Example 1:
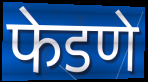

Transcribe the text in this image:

फेडणे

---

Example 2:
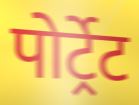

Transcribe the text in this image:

पोर्ट्रेट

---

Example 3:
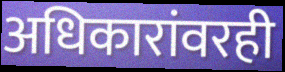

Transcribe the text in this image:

अधिकारांवरही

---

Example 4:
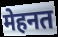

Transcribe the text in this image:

मेहनत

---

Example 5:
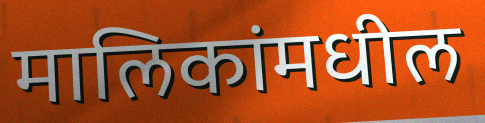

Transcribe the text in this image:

मालिकांमधील